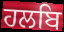
ਹਲਬਿ